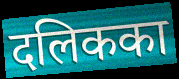
दलिकका